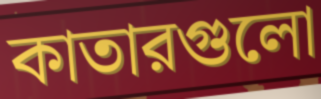
কাতারগুলো